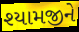
શ્યામજીને